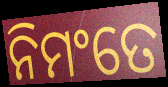
ନିମଂତେ